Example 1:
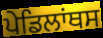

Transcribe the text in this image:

ਪੇਡਿਲਾਂਥਸ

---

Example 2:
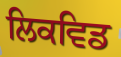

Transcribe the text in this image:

ਲਿਕਵਿਡ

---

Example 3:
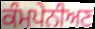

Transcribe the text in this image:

ਕੰਮਪੇਨੀਅਣ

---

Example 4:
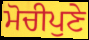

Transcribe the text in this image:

ਮੋਚੀਪੁਣੇ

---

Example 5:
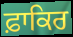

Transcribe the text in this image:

ਫ਼ਾਕਿਰ